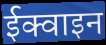
ईक्वाइन